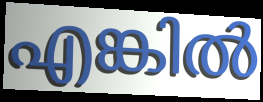
എങ്കിൽ